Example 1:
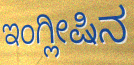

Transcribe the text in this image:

ಇಂಗ್ಲೀಷಿನ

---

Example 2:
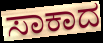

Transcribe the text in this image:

ಸಾಕಾದ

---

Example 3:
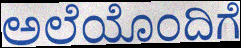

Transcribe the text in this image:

ಅಲೆಯೊಂದಿಗೆ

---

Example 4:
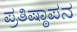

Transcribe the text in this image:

ಪ್ರತಿಷ್ಠಾಪನ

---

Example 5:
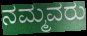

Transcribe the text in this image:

ನಮ್ಮವರು